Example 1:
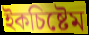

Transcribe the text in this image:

ইকচিষ্টেম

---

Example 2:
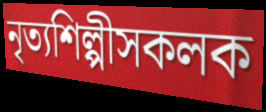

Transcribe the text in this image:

নৃত্যশিল্পীসকলক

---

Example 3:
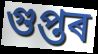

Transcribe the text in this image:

গুপ্তৰ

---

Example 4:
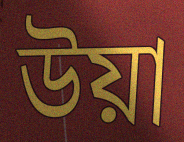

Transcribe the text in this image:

উয়া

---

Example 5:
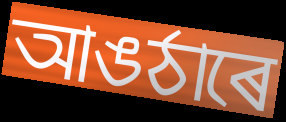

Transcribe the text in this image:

আঙঠাৰে